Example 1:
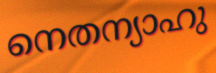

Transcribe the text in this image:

നെതന്യാഹു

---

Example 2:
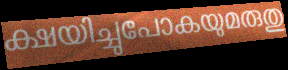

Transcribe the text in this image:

ക്ഷയിച്ചുപോകയുമരുതു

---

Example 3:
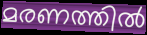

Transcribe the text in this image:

മരണത്തിൽ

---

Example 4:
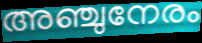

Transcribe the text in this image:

അഞ്ചുനേരം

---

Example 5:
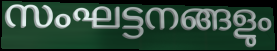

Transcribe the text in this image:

സംഘട്ടനങ്ങളും